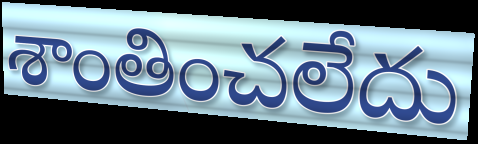
శాంతించలేదు